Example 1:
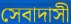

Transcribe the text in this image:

সেবাদাসী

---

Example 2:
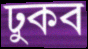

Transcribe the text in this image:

ঢুকব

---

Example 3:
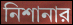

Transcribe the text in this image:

নিশানার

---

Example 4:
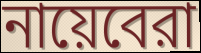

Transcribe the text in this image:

নায়েবেরা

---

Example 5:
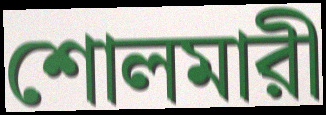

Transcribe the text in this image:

শোলমারী